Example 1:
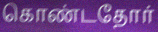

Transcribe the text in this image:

கொண்டதோர்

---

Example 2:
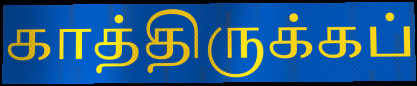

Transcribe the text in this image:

காத்திருக்கப்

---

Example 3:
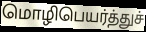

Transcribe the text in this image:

மொழிபெயர்த்துச்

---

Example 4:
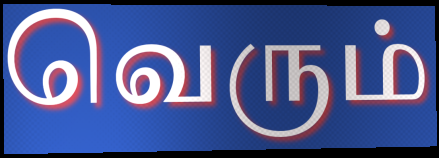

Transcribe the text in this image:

வெரும்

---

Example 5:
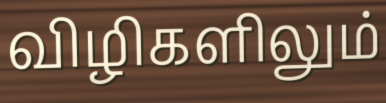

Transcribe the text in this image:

விழிகளிலும்